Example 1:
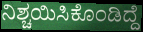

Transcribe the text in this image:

ನಿಶ್ಚಯಿಸಿಕೊಂಡಿದ್ದೆ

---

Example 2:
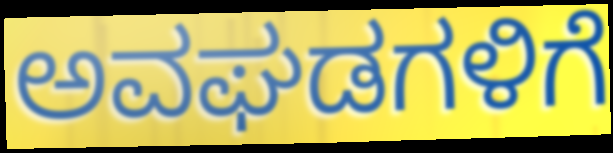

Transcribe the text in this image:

ಅವಘಡಗಳಿಗೆ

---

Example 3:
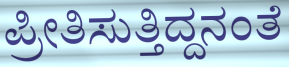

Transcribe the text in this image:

ಪ್ರೀತಿಸುತ್ತಿದ್ದನಂತೆ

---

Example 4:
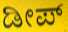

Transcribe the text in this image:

ಡೀಪ್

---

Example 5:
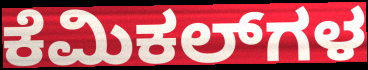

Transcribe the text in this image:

ಕೆಮಿಕಲ್‌ಗಳ